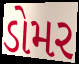
ડોમર